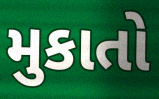
મુકાતો